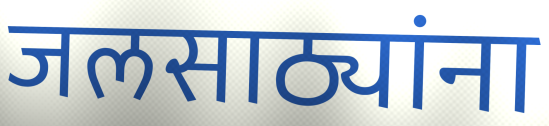
जलसाठ्यांना